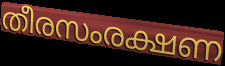
തീരസംരക്ഷണ